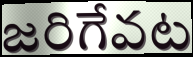
జరిగేవట